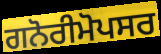
ਗਨੋਰੀਮੋਪਸਰ